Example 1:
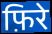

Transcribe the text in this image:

फ़िरे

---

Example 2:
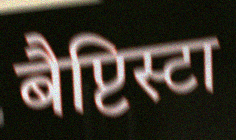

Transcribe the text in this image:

बैप्टिस्टा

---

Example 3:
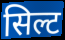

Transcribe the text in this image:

सिल्ट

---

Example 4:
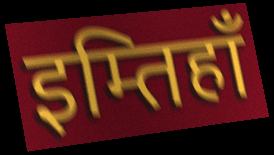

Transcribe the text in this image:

इम्तिहाँ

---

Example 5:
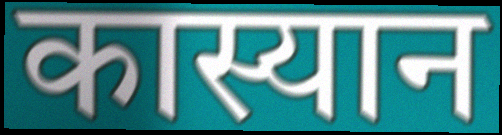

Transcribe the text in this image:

कास्यान